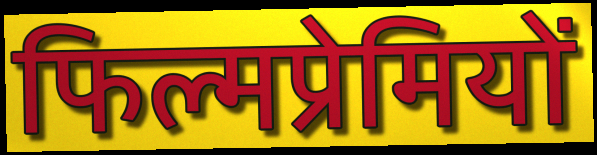
फिल्मप्रेमियों